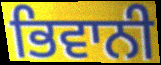
ਭਿਵਾਨੀ